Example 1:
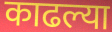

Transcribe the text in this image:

काढल्या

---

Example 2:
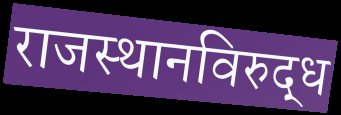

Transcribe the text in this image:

राजस्थानविरुद्ध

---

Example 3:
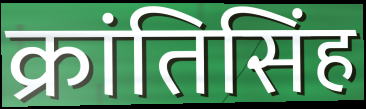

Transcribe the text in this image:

क्रांतिसिंह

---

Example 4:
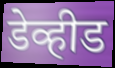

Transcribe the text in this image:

डेव्हीड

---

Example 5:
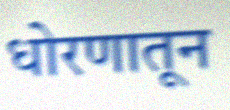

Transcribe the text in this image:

धोरणातून